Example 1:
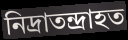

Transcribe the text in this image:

নিদ্রাতন্দ্রাহত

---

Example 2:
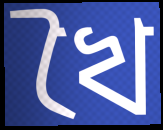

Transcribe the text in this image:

খৈ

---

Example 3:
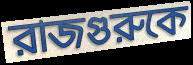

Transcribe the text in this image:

রাজগুরুকে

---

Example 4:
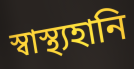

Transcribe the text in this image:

স্বাস্থ্যহানি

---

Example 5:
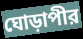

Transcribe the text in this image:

ঘোড়াপীর